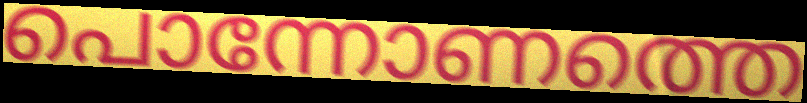
പൊന്നോണത്തെ